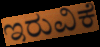
ಇರುವಿಕೆ